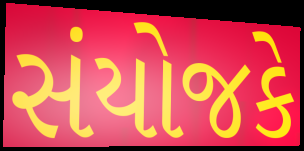
સંયોજકે